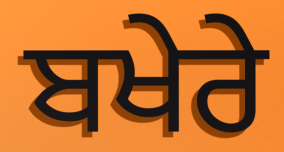
ਬਖੇਰੇ